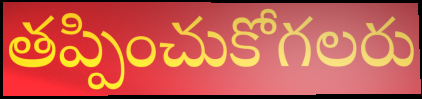
తప్పించుకోగలరు